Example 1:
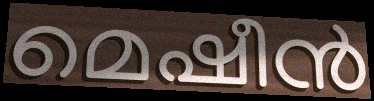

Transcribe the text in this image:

മെഷീൻ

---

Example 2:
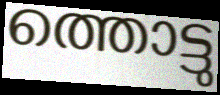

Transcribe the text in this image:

ത്തൊട്ടു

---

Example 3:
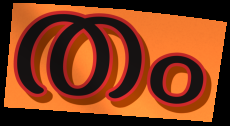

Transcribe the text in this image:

തം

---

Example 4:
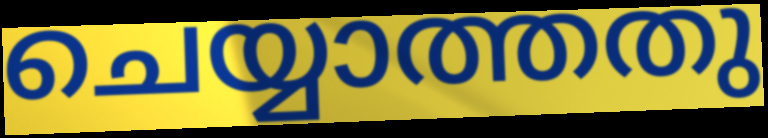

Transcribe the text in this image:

ചെയ്യാത്തതു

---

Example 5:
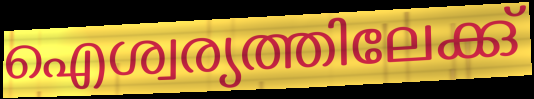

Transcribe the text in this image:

ഐശ്വര്യത്തിലേക്കു്